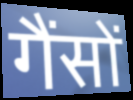
गैंसों